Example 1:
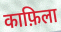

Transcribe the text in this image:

काफ़िला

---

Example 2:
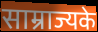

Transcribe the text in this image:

साम्राज्यके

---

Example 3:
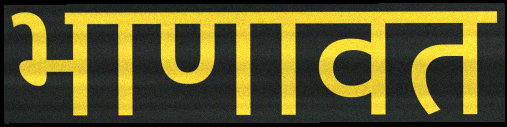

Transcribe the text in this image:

भाणावत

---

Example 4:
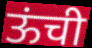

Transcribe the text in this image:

ऊंची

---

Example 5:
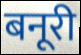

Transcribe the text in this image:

बनूरी